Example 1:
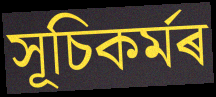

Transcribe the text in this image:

সূচিকৰ্মৰ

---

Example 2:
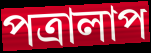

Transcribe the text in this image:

পত্ৰালাপ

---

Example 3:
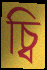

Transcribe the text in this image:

চ্বি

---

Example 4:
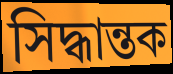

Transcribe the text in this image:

সিদ্ধান্তক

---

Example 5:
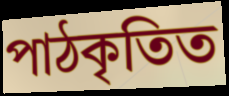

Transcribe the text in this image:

পাঠকৃতিত